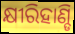
କ୍ଷୀରିହାଣ୍ଡି